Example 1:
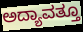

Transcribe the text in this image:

ಅದ್ಯಾವತ್ತೂ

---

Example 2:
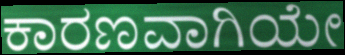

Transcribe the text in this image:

ಕಾರಣವಾಗಿಯೇ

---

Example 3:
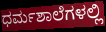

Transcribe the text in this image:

ಧರ್ಮಶಾಲೆಗಳಲ್ಲಿ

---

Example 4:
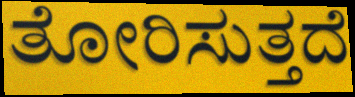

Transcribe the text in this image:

ತೋರಿಸುತ್ತದೆ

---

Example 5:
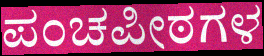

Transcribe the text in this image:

ಪಂಚಪೀಠಗಳ